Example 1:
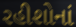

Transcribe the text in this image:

રહીશોનાં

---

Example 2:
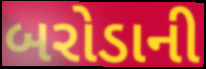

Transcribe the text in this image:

બરોડાની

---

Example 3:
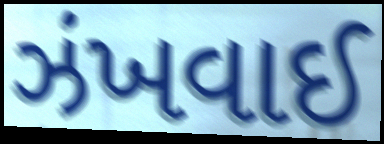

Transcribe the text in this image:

ઝંખવાઈ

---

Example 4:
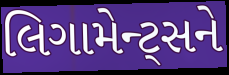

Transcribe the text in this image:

લિગામેન્ટ્સને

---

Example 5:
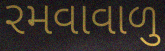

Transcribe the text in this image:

રમવાવાળુ